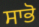
ਸਾਭੋ